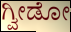
ಗ್ವೀಡೋ